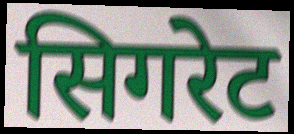
सिगरेट